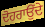
ਦੋਹਰਾਉਂਦੇ